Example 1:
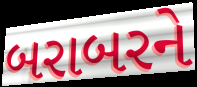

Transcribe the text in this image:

બરાબરને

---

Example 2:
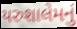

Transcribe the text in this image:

યરુશાલેમનું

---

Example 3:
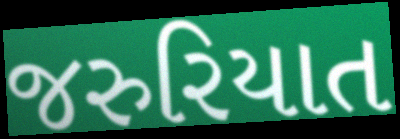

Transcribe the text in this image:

જરુરિયાત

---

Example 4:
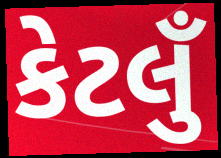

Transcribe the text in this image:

કેટલુઁ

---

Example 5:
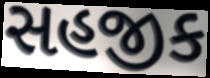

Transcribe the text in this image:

સહજીક